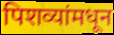
पिशव्यांमधून